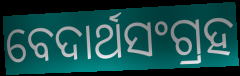
ବେଦାର୍ଥସଂଗ୍ରହ